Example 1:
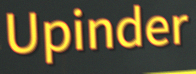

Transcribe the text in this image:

Upinder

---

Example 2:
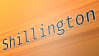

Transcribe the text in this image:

Shillington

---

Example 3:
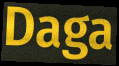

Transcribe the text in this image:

Daga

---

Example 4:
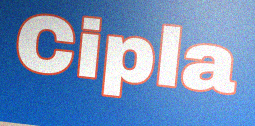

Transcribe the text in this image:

Cipla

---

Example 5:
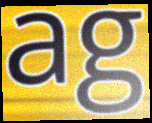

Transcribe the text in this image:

ag